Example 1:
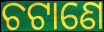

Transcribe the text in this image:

ଚଟାଣେ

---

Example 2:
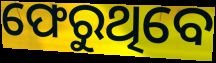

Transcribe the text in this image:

ଫେରୁଥିବେ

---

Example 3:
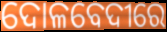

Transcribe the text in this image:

ଦୋଳବେଦୀରେ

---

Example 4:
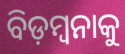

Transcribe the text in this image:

ବିଡ଼ମ୍ୱନାକୁ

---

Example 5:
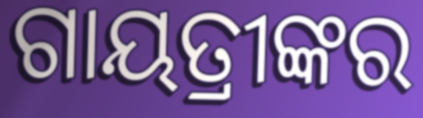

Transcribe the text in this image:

ଗାୟତ୍ରୀଙ୍କର